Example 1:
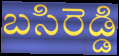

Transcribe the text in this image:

బసిరెడ్డి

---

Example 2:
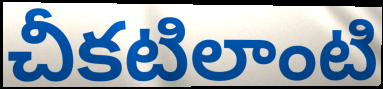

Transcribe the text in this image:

చీకటిలాంటి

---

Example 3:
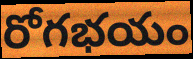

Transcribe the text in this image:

రోగభయం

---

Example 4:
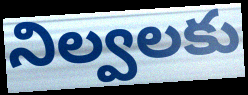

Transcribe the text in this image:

నిల్వలకు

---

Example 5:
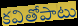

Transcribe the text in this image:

కవితోపాటు